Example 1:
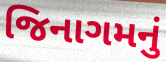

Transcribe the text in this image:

જિનાગમનું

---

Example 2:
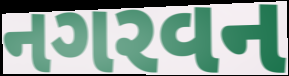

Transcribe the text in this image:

નગરવન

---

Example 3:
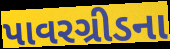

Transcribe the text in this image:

પાવરગ્રીડના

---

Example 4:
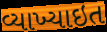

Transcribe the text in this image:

વ્યાખ્યાઇત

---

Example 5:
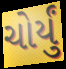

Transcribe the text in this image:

ચોર્યું